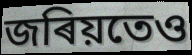
জৰিয়তেও